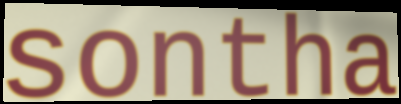
sontha